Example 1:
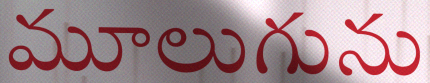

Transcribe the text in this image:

మూలుగును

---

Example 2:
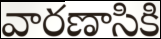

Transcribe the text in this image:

వారణాసికి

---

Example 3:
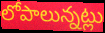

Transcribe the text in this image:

లోపాలున్నట్లు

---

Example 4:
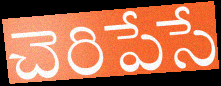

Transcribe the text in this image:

చెరిపేసే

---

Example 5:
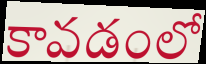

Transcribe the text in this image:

కావడంలో